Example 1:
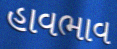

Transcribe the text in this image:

હાવભાવ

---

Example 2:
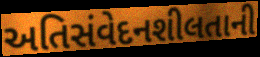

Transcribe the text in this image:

અતિસંવેદનશીલતાની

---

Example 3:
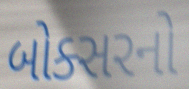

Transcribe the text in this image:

બોક્સરનો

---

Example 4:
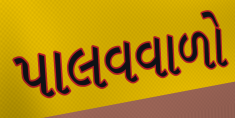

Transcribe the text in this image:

પાલવવાળો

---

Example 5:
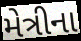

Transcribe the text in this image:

મેત્રીના